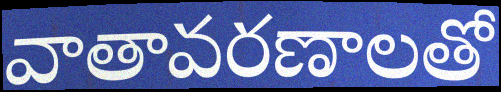
వాతావరణాలతో